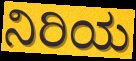
ನಿರಿಯ